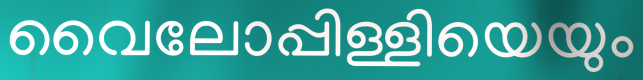
വൈലോപ്പിള്ളിയെയും